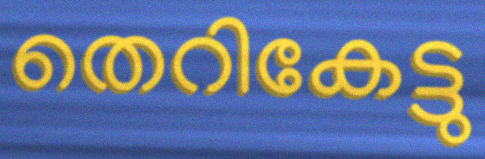
തെറികേട്ടു